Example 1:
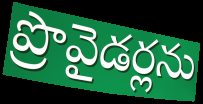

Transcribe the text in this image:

ప్రొవైడర్లను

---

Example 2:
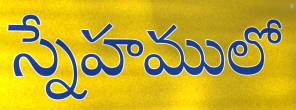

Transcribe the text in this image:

స్నేహములో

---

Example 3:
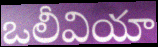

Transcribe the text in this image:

ఒలీవియా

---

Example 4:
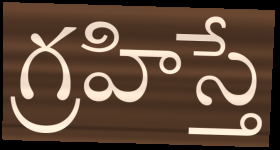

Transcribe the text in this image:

గ్రహిస్తే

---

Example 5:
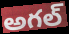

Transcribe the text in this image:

అగల్